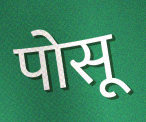
पोसू